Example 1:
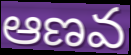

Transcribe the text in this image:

ఆణవ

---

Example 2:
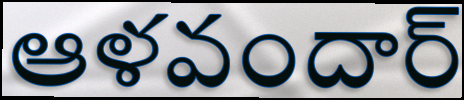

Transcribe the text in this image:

ఆళవందార్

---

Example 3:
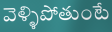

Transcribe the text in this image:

వెళ్ళిపోతుంటే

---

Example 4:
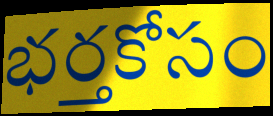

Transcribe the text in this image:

భర్తకోసం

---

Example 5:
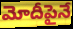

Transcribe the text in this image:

మోదీపైనే